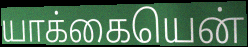
யாக்கையென்